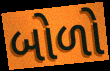
બોળો